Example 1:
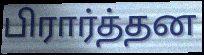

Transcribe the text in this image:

பிரார்த்தன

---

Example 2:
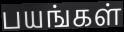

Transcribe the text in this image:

பயங்கள்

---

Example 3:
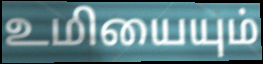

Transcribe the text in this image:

உமியையும்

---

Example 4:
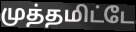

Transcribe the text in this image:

முத்தமிட்டே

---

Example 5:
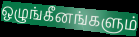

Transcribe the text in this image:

ஒழுங்கீனங்களும்